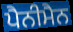
ਪੈਨੀਮੈਨ